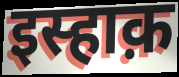
इस्हाक़